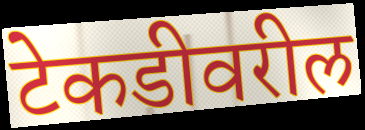
टेकडीवरील